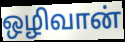
ஒழிவான்